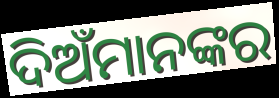
ଦିଅଁମାନଙ୍କର